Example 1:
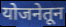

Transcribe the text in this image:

योजनेतून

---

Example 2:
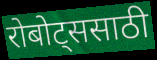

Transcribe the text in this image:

रोबोट्ससाठी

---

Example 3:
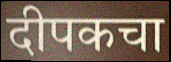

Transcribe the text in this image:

दीपकचा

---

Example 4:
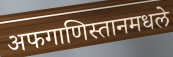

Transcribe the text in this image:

अफगाणिस्तानमधले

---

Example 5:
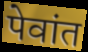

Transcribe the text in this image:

पेवांत